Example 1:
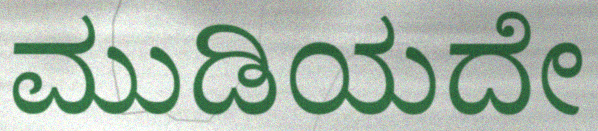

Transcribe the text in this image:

ಮುಡಿಯದೇ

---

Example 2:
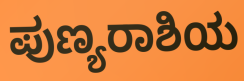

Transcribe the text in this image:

ಪುಣ್ಯರಾಶಿಯ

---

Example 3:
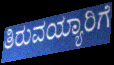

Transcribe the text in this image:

ತಿರುವಯ್ಯಾರಿಗೆ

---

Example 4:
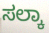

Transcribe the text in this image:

ಸಲ್ಕಾ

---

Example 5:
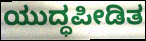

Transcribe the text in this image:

ಯುದ್ಧಪೀಡಿತ